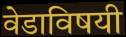
वेडाविषयी